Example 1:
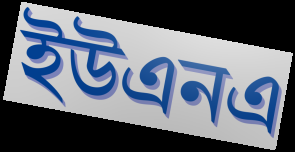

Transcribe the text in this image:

ইউএনএ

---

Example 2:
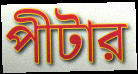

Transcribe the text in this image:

পীটার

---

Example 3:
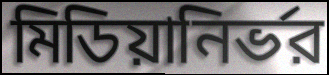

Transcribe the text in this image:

মিডিয়ানির্ভর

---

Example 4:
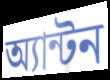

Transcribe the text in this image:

অ্যান্টন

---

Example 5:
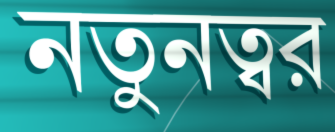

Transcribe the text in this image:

নতুনত্বর